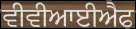
ਵੀਵੀਆਈਐਫ